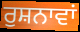
ਰੁਸ਼ਨਾਵਾਂ